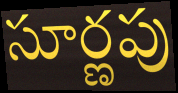
సూర్ణపు